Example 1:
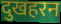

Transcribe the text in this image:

दुखहरन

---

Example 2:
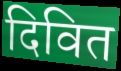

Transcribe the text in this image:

दिवित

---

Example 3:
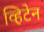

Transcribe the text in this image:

व्हिटेन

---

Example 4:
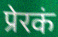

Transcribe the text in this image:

प्रेरकं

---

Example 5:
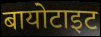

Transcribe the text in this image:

बायोटाइट